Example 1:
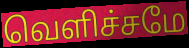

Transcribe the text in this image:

வெளிச்சமே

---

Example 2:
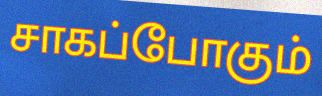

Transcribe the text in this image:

சாகப்போகும்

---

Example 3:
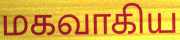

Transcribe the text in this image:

மகவாகிய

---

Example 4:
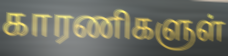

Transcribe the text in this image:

காரணிகளுள்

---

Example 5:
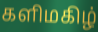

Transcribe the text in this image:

களிமகிழ்